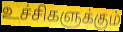
உச்சிகளுக்கும்